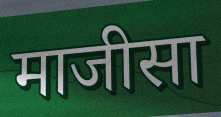
माजीसा